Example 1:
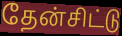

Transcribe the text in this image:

தேன்சிட்டு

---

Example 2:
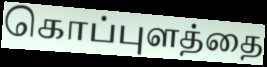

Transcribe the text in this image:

கொப்புளத்தை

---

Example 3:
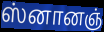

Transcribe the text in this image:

ஸ்னானஞ்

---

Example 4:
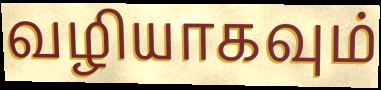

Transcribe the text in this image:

வழியாகவும்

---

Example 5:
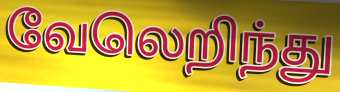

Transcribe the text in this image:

வேலெறிந்து